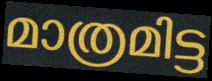
മാത്രമിട്ട